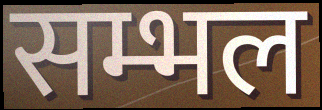
सम्भल